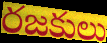
రజకులు